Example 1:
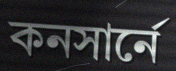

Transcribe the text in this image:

কনসার্নে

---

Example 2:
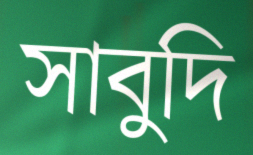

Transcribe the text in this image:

সাবুদি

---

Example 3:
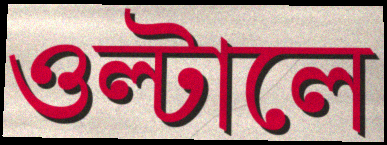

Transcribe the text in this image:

ওল্টালে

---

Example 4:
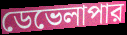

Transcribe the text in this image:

ডেভেলাপার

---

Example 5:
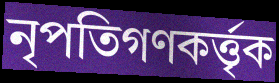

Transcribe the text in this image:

নৃপতিগণকর্ত্তৃক